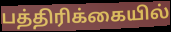
பத்திரிக்கையில்